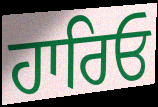
ਹਾਰਿਓ